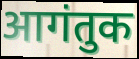
आगंतुक